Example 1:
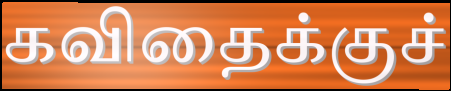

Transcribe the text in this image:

கவிதைக்குச்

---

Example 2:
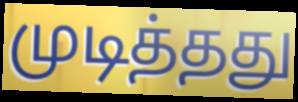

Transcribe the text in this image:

முடித்தது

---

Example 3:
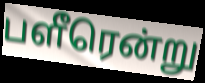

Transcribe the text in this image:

பளீரென்று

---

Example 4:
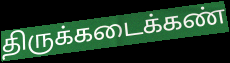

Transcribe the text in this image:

திருக்கடைக்கண்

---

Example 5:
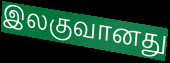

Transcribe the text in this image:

இலகுவானது